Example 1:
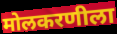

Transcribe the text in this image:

मोलकरणीला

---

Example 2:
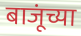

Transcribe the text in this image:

बाजूंच्या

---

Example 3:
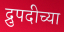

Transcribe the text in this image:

द्रुपदीच्या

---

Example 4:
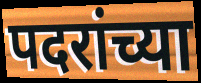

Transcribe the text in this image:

पदरांच्या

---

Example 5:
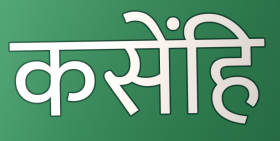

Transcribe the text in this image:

कसेंहि